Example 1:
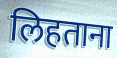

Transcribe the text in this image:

लिहताना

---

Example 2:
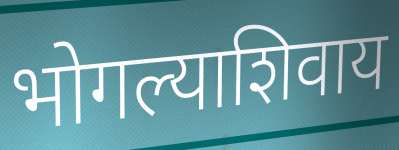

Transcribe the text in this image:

भोगल्याशिवाय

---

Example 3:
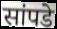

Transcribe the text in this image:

सांपडे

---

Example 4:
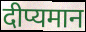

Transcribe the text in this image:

दीप्यमान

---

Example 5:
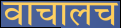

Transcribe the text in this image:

वाचालच